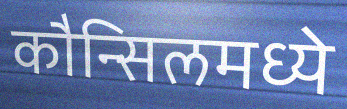
कौन्सिलमध्ये